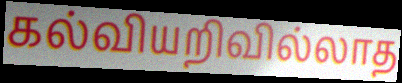
கல்வியறிவில்லாத